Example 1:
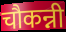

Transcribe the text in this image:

चौकन्नी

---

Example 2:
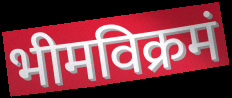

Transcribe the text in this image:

भीमविक्रमं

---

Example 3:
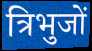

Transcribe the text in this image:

त्रिभुजों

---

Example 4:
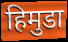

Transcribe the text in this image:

हिमुडा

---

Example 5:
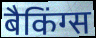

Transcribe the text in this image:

बैकिंग्स